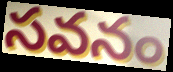
సవనం